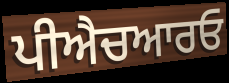
ਪੀਐਚਆਰਓ